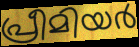
പ്രീമിയർ